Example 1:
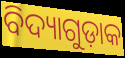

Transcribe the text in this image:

ବିଦ୍ୟାଗୁଡ଼ାକ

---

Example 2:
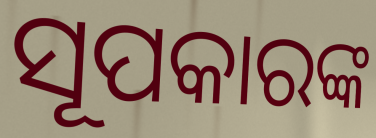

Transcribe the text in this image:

ସୂପକାରଙ୍କ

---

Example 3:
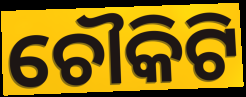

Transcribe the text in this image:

ଚୌକିଟି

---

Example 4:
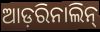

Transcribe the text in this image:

ଆଡ଼ରିନାଲିନ୍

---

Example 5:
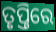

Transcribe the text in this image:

ତୃପ୍ତିରେ